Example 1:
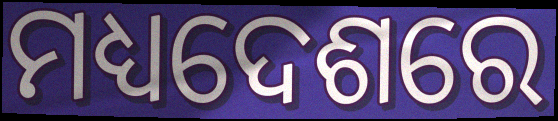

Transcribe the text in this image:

ମଧ୍ୟଦେଶରେ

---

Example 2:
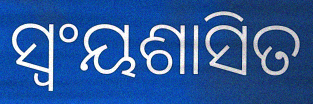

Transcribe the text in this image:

ସ୍ୱଂୟଶାସିତ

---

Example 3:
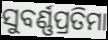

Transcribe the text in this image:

ସୁବର୍ଣ୍ଣପ୍ରତିମା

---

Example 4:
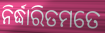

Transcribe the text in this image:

ନିର୍ଦ୍ଧାରିତମତେ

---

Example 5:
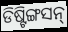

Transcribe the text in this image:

ଡିଷ୍ଟିଙ୍ଗସନ୍